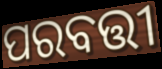
ପରବତ୍ତୀ